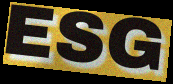
ESG